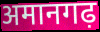
अमानगढ़